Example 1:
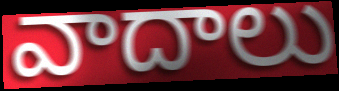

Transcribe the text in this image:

వాదాలు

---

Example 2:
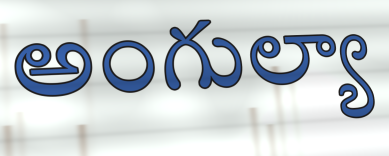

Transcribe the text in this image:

అంగుల్యా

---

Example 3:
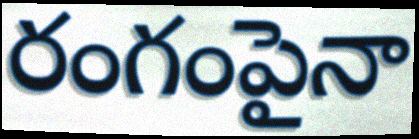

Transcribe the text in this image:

రంగంపైనా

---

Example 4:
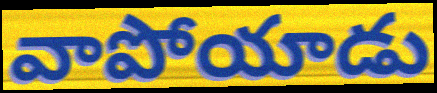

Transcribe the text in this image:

వాపోయాడు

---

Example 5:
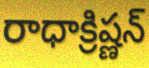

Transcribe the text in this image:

రాధాక్రిష్ణన్